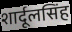
शार्दूलसिंह